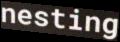
nesting